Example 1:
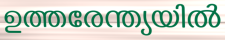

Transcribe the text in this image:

ഉത്തരേന്ത്യയിൽ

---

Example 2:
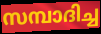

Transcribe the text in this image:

സമ്പാദിച്ച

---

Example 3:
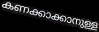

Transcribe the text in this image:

കണക്കാക്കാനുള്ള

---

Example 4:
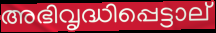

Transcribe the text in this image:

അഭിവൃദ്ധിപ്പെട്ടാല്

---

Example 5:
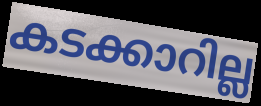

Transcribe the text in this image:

കടക്കാറില്ല